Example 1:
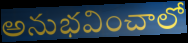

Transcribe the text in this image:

అనుభవించాలో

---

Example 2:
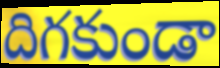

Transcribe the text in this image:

దిగకుండా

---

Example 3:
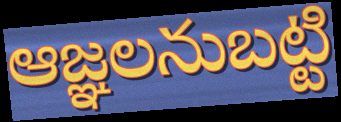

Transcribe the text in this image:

ఆజ్ఞలనుబట్టి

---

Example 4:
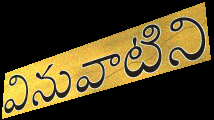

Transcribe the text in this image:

వినువాటిని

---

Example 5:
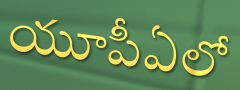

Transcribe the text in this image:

యూపీఏలో